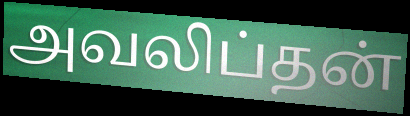
அவலிப்தன்